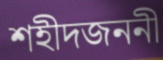
শহীদজননী